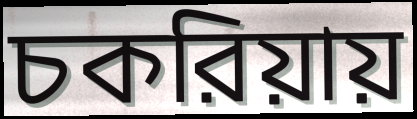
চকরিয়ায়